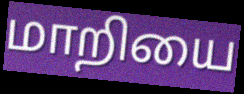
மாறியை